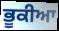
ਭੂਕੀਆ